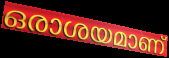
ഒരാശയമാണ്